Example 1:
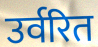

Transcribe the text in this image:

उर्वरित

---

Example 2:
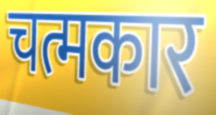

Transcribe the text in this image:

चत्मकार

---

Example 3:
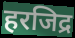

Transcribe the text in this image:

हरजिद्र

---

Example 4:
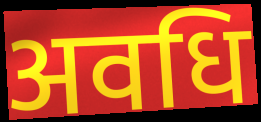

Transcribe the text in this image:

अवधि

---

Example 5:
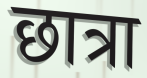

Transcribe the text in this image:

छात्रा